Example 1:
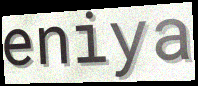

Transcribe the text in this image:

eniya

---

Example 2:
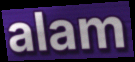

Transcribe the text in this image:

alam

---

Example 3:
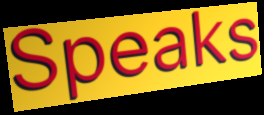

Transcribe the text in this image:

Speaks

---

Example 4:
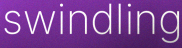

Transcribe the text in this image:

swindling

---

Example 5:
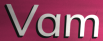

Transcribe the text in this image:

Vam